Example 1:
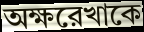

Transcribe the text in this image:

অক্ষরেখাকে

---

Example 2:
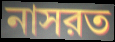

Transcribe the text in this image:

নাসরত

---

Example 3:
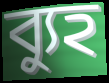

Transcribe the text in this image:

ব্যুহ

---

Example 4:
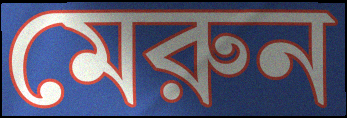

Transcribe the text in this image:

মেরুন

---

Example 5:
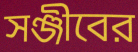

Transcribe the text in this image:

সঞ্জীবের